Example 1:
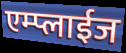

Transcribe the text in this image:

एम्प्लाईज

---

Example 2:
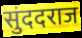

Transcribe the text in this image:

सुंददराज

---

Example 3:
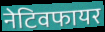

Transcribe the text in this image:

नेटिवफायर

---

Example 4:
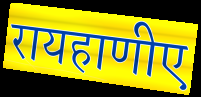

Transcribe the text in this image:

रायहाणीए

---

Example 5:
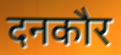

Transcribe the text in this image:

दनकौर